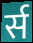
र्स